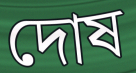
দোষ